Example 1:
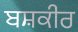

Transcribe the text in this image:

ਬਸ਼ਕੀਰ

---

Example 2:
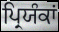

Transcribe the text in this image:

ਪ੍ਰਿਯੰਕਾਂ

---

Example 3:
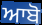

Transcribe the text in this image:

ਆਬੋ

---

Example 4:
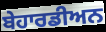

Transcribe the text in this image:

ਬੇਹਾਰਡੀਅਨ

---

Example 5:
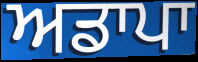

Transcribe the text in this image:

ਅਡਾਪਾ